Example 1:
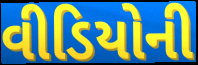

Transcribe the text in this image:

વીડિયોની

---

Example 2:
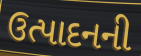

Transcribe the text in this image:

ઉત્પાદનની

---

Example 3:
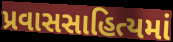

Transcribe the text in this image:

પ્રવાસસાહિત્યમાં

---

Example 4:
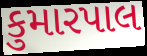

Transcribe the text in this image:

કુમારપાલ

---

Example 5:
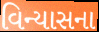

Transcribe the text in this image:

વિન્યાસના